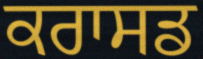
ਕਰਾਸਡ